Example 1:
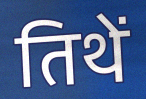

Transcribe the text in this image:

तिथें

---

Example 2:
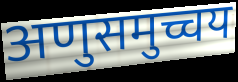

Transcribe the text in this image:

अणुसमुच्चय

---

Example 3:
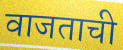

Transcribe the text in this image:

वाजताची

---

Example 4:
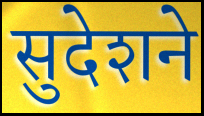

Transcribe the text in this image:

सुदेशने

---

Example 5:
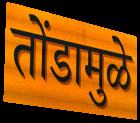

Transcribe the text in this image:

तोंडामुळे